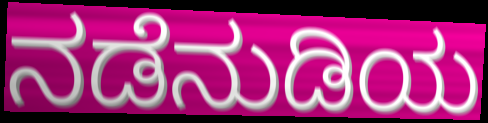
ನಡೆನುಡಿಯ